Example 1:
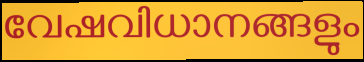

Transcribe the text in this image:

വേഷവിധാനങ്ങളും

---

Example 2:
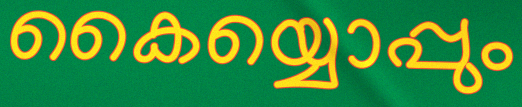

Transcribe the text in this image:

കൈയ്യൊപ്പും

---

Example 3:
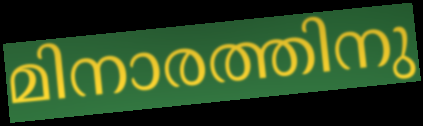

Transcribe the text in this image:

മിനാരത്തിനു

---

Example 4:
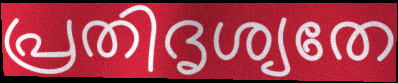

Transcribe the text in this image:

പ്രതിദൃശ്യതേ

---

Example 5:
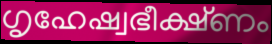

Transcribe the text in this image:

ഗൃഹേഷ്വഭീക്ഷ്ണം